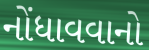
નોંધાવવાનો